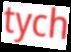
tych